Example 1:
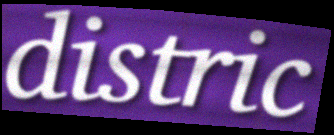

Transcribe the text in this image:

distric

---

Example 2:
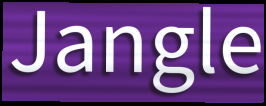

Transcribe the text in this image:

Jangle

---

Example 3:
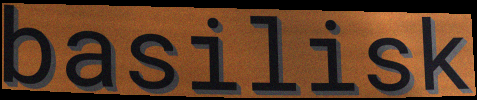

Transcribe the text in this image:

basilisk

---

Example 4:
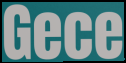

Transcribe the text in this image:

Gece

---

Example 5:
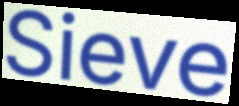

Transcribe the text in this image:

Sieve